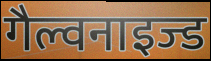
गैल्वनाइज्ड